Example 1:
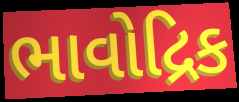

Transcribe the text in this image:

ભાવોદ્રિક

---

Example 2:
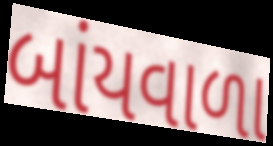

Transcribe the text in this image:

બાંયવાળા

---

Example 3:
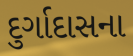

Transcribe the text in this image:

દુર્ગાદાસના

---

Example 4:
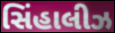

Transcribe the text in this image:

સિંહાલીઝ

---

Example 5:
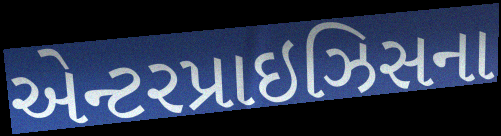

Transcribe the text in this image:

એન્ટરપ્રાઇઝિસના